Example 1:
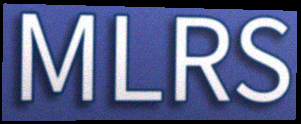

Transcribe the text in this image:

MLRS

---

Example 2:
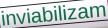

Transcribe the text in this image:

inviabilizam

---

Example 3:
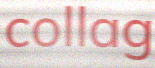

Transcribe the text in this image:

collag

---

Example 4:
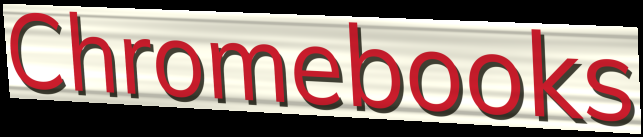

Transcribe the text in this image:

Chromebooks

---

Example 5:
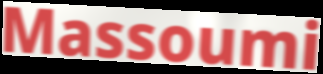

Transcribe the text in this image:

Massoumi